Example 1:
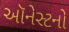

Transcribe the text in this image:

ઑનેસ્ટનો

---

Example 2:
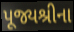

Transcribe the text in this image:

પૂજ્યશ્રીના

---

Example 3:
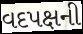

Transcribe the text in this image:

વદપક્ષની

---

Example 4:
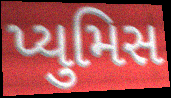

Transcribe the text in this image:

પ્યુમિસ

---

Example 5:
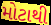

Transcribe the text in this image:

મોટાથી